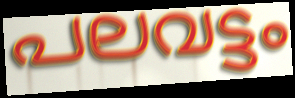
പലവട്ടം